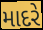
માદરે